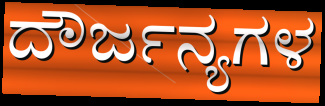
ದೌರ್ಜನ್ಯಗಳ